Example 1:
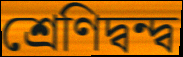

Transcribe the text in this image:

শ্রেণিদ্বন্দ্ব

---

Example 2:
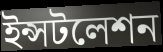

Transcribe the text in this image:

ইন্সটলেশন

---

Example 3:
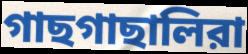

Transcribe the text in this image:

গাছগাছালিরা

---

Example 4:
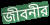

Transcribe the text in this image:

জীবনীর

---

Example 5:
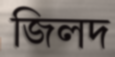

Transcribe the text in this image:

জিলদ